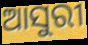
ଆସୁରୀ